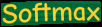
Softmax